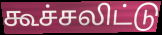
கூச்சலிட்டு